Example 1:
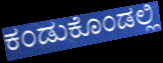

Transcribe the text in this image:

ಕಂಡುಕೊಂಡಲ್ಲಿ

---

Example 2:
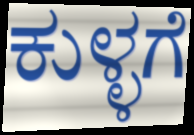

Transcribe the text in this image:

ಕುಳ್ಳಗೆ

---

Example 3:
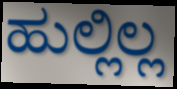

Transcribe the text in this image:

ಹುಲ್ಲಿಲ್ಲ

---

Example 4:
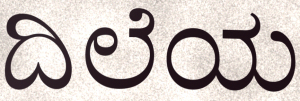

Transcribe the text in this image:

ದಿಲೆಯ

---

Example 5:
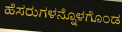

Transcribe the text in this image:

ಹೆಸರುಗಳನ್ನೊಳಗೊಂಡ